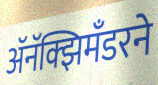
ॲनॅक्झिमँडरने